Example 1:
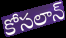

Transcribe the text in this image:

కోసలాన్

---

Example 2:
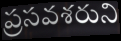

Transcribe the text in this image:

ప్రసవశరుని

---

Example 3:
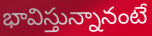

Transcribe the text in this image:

భావిస్తున్నానంటే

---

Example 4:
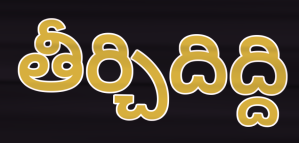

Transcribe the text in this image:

తీర్చిదిద్ది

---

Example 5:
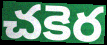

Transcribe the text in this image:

చకెర